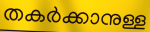
തകർക്കാനുള്ള